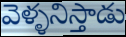
వెళ్ళనిస్తాడు